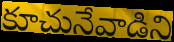
కూచునేవాడిని